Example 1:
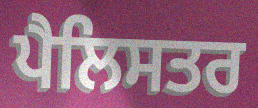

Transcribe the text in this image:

ਪੈਲਿਸਤਰ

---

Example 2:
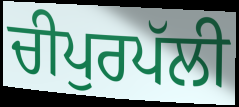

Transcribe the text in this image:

ਚੀਪੁਰਪੱਲੀ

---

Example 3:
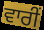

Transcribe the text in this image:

ਵਾਰੀਂ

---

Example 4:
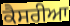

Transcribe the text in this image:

ਕੈਸਰੀਆ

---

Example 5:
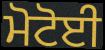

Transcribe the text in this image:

ਮੋਟੋਈ